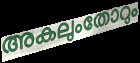
അകലുംതോറും